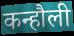
कन्हौली